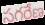
సగరేణ